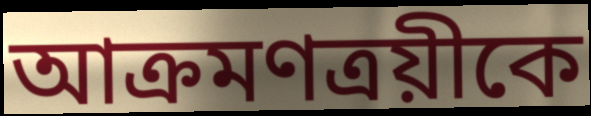
আক্রমণত্রয়ীকে